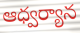
ఆధ్వర్యాన